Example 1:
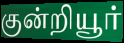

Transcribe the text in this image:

குன்றியூர்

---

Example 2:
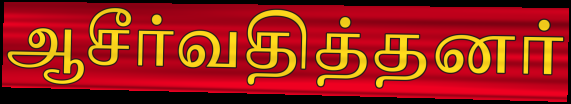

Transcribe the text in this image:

ஆசீர்வதித்தனர்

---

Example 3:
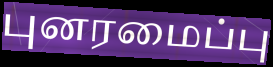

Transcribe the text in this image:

புனரமைப்பு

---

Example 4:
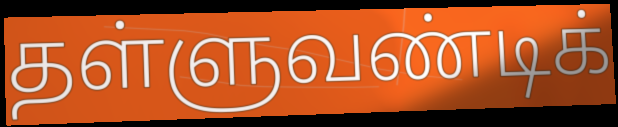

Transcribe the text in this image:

தள்ளுவண்டிக்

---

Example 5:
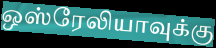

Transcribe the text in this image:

ஒஸ்ரேலியாவுக்கு